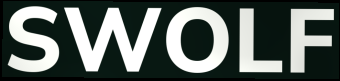
SWOLF